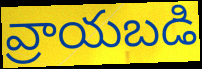
వ్రాయబడి